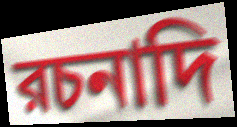
রচনাদি